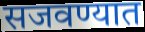
सजवण्यात